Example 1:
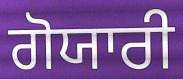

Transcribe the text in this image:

ਗੋਯਾਰੀ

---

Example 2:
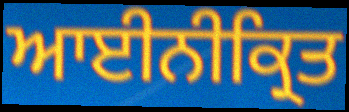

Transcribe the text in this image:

ਆਈਨੀਕ੍ਰਿਤ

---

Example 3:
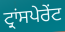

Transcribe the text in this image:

ਟ੍ਰਾਂਸਪੇਰੇਂਟ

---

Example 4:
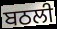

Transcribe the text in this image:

ਬਠਲੀ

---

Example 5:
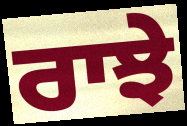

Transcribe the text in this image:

ਰਾਝੇ